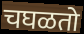
चघळतो